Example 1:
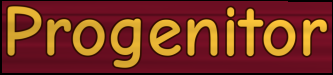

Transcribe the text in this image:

Progenitor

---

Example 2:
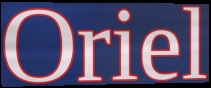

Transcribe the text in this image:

Oriel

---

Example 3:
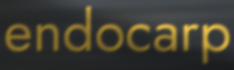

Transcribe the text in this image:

endocarp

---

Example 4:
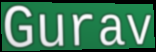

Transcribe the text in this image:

Gurav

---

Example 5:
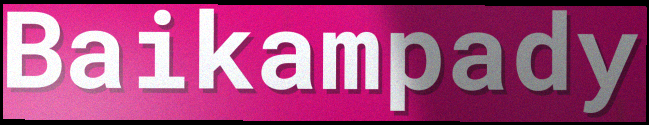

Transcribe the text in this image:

Baikampady